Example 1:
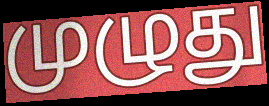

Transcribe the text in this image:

முழுது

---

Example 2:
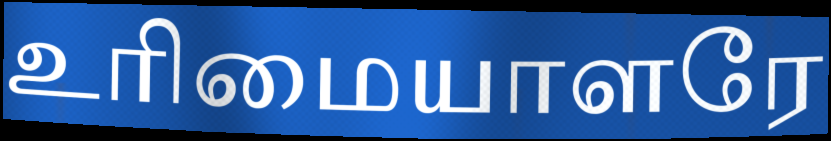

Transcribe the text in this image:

உரிமையாளரே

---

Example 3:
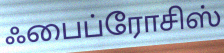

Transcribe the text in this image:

ஃபைப்ரோசிஸ்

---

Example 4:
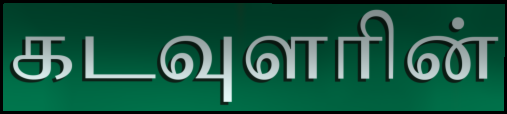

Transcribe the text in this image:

கடவுளரின்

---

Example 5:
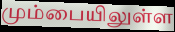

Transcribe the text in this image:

மும்பையிலுள்ள